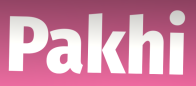
Pakhi